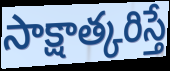
సాక్షాత్కరిస్తే